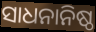
ସାଧନାନିଷ୍ଠ